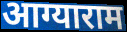
आग्याराम